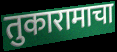
तुकारामाचा